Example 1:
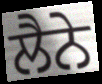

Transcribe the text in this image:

ਲੈਨੇ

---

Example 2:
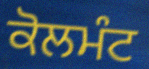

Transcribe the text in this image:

ਕੋਲਮੰਟ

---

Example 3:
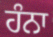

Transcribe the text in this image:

ਹੰਨਾ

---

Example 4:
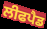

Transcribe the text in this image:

ਲੀਫਪੈਡ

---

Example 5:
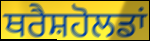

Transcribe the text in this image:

ਥਰੈਸ਼ਹੋਲਡਾਂ